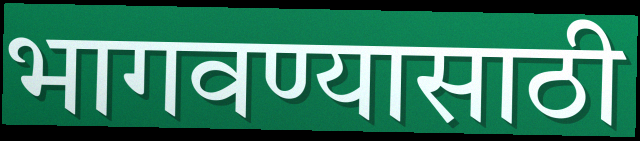
भागवण्यासाठी